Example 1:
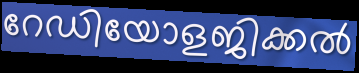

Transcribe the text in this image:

റേഡിയോളജിക്കൽ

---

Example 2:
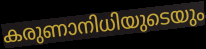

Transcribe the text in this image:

കരുണാനിധിയുടെയും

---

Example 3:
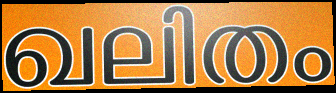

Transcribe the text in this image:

ഖലിതം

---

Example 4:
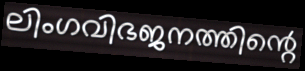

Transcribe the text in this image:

ലിംഗവിഭജനത്തിന്റെ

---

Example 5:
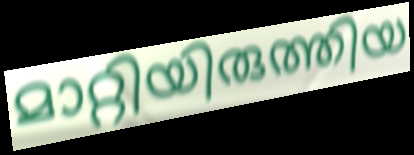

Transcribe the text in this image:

മാറ്റിയിരുത്തിയ